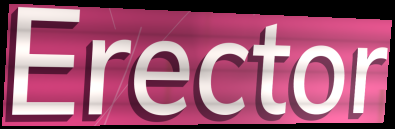
Erector